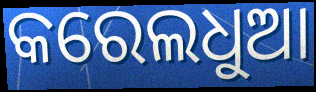
କରେଲଧୁଆ